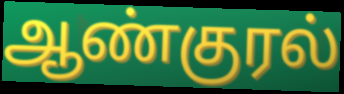
ஆண்குரல்